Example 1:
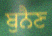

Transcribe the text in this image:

ਬੁਨੈਣ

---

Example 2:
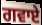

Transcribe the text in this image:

ਗਵਾਏ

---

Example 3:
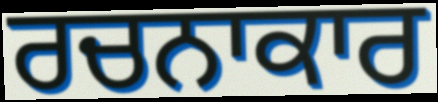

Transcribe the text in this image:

ਰਚਨਾਕਾਰ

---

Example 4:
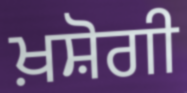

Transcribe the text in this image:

ਖ਼ਸ਼ੋਗੀ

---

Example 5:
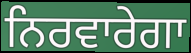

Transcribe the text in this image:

ਨਿਰਵਾਰੇਗਾ